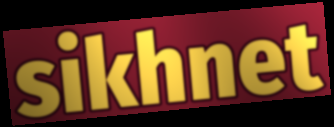
sikhnet